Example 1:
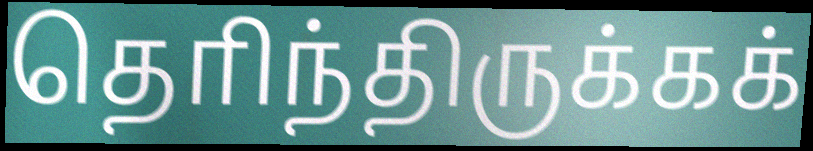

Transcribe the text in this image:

தெரிந்திருக்கக்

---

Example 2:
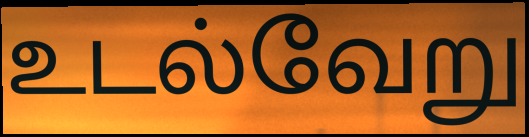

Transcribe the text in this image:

உடல்வேறு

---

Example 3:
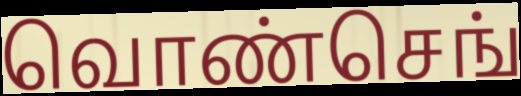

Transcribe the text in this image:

வொண்செங்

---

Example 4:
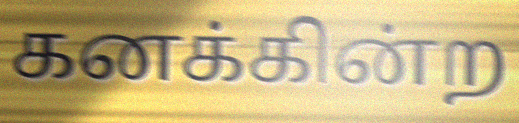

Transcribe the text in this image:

கனக்கின்ற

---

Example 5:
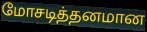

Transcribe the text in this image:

மோசடித்தனமான